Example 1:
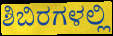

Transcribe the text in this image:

ಶಿಬಿರಗಳಲ್ಲಿ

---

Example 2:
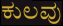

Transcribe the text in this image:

ಕುಲವು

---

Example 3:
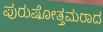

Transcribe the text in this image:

ಪುರುಷೋತ್ತಮರಾದ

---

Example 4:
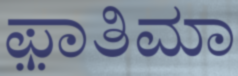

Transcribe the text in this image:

ಫ಼ಾತಿಮಾ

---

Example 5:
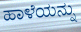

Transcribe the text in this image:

ಹಾಳೆಯನ್ನು